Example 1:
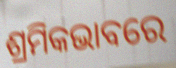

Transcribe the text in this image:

ଶ୍ରମିକଭାବରେ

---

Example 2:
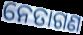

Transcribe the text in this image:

ନେତାଗଣ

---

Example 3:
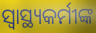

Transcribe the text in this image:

ସ୍ବାସ୍ଥ୍ୟକର୍ମୀଙ୍କ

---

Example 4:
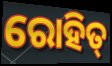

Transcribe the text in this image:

ରୋହିତ୍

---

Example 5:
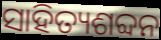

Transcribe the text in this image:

ସାହିତ୍ୟଶବ୍ଦନ